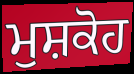
ਮੁਸ਼ਕੋਹ